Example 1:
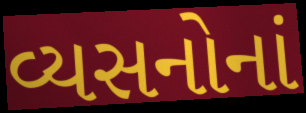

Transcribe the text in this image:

વ્યસનોનાં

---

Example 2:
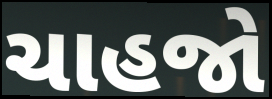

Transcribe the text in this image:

ચાહજો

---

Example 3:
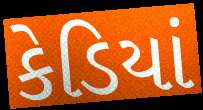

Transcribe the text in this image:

કેડિયાં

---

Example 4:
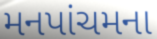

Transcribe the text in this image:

મનપાંચમના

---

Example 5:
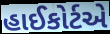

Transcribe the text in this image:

હાઈકોર્ટએ